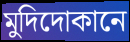
মুদিদোকানে